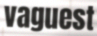
vaguest